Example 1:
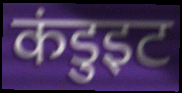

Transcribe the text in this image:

कंडुइट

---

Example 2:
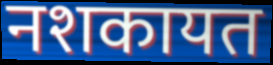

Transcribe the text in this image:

नशकायत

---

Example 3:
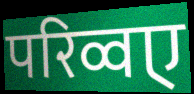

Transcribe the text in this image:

परिव्वए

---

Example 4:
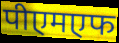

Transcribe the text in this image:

पीएमएफ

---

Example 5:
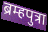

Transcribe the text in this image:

ब्रम्हपुत्रा